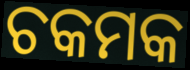
ଚକମକ